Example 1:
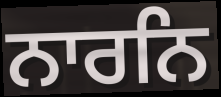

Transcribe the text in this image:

ਨਾਰਨਿ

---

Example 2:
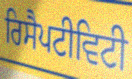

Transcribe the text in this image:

ਰਿਸੈਪਟੀਵਿਟੀ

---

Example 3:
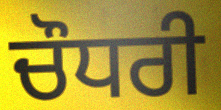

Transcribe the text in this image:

ਚੌਧਰੀ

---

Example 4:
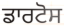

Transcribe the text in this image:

ਡਾਰਟੋਸ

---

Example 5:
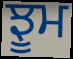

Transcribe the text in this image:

ਝੂਮ